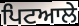
ਪਿਟਆਲੇ